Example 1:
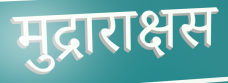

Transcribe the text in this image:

मुद्राराक्षस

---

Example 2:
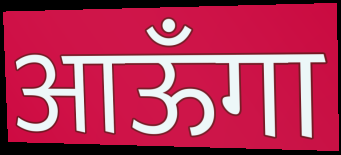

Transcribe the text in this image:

आऊँगा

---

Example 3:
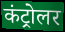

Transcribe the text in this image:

कंट्रोलर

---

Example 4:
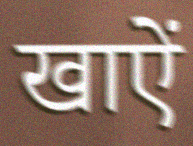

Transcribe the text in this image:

खाऐं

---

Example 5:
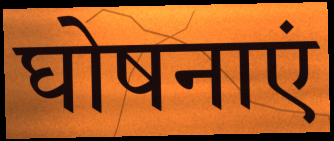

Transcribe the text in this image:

घोषनाएं